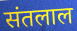
संतलाल